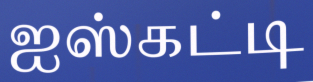
ஐஸ்கட்டி